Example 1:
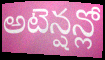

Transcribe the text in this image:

అటెన్షన్లో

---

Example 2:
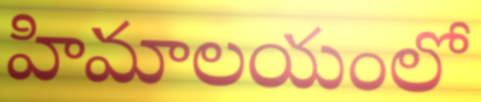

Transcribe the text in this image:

హిమాలయంలో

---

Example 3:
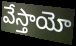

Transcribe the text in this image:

వేస్తాయో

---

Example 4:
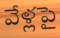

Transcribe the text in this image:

వేళ్లపై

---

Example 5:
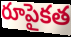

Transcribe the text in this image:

రూపైకత